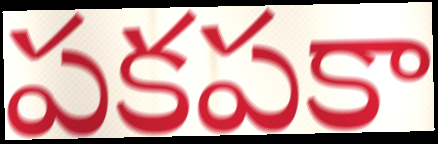
పకపకా